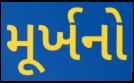
મૂર્ખનો